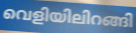
വെളിയിലിറങ്ങി